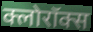
क्लोरॉक्स